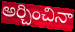
అర్చించినా